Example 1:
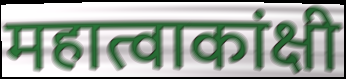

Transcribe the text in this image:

महात्वाकांक्षी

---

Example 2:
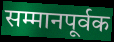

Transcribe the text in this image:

सम्मानपूर्वक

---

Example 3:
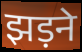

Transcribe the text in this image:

झड़ने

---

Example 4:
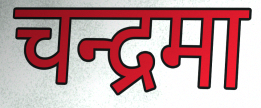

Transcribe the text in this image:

चन्द्रमा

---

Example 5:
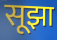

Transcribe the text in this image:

सूझा